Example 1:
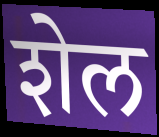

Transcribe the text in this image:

शेल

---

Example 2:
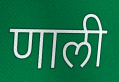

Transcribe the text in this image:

णाली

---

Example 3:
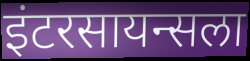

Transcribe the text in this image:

इंटरसायन्सला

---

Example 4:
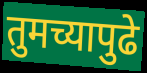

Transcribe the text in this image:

तुमच्यापुढे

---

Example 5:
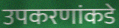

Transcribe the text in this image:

उपकरणांकडे